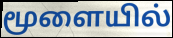
மூளையில்